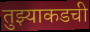
तुझ्याकडची